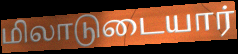
மிலாடுடையார்